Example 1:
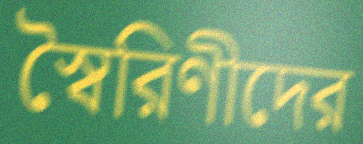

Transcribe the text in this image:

স্বৈরিণীদের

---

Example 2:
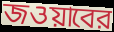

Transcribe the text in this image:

জওয়াবের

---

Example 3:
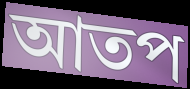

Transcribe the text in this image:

আতপ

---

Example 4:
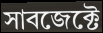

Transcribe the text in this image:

সাবজেক্টে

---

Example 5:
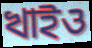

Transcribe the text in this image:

খাইও